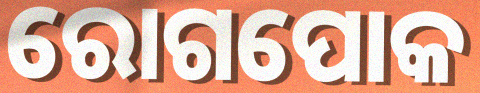
ରୋଗପୋକ